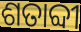
ଶତାବ୍ଦୀ